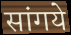
सांगये